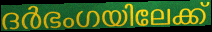
ദർഭംഗയിലേക്ക്